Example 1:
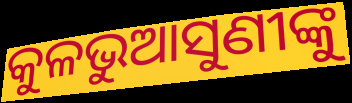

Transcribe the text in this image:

କୁଳଭୁଆସୁଣୀଙ୍କୁ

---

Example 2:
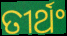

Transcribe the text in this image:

ତୀର୍ଥଂ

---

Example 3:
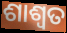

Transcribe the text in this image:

ଶାଶ୍ୱତ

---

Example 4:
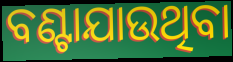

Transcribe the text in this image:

ବଣ୍ଟାଯାଉଥିବା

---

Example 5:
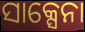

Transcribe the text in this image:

ସାକ୍ସେନା